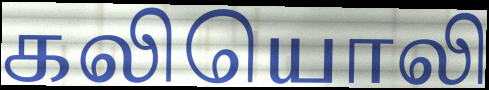
கலியொலி